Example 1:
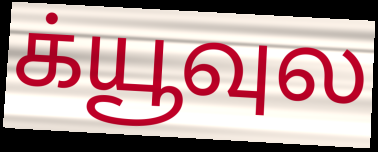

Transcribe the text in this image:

க்யூவுல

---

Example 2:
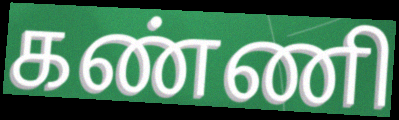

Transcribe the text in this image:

கண்ணி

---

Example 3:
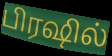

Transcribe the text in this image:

பிரஷில்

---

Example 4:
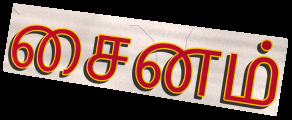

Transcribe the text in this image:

சைனம்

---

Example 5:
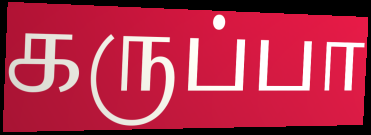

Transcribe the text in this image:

கருப்பா